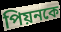
পিয়নকে